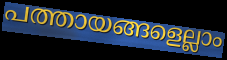
പത്തായങ്ങളെല്ലാം